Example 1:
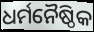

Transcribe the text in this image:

ଧର୍ମନୈଷ୍ଠିକ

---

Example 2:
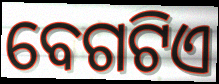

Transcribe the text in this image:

ବେଗଟିଏ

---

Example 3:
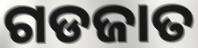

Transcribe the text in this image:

ଗଡଜାତ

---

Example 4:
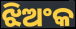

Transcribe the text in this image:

ଝିଅଂକ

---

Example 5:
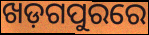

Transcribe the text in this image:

ଖଡ଼ଗପୁରରେ